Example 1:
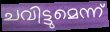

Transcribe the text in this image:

ചവിട്ടുമെന്ന്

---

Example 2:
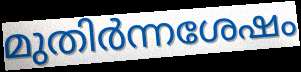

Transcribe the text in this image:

മുതിർന്നശേഷം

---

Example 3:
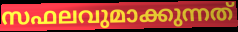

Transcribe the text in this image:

സഫലവുമാക്കുന്നത്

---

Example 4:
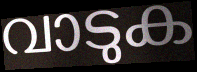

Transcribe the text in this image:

വാടുക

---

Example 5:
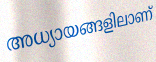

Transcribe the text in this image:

അധ്യായങ്ങളിലാണ്